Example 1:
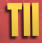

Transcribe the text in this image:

TII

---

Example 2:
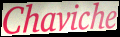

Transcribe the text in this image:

Chaviche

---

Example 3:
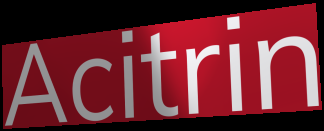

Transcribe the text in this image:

Acitrin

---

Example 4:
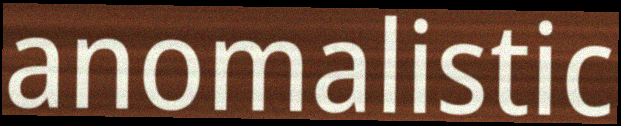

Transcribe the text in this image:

anomalistic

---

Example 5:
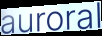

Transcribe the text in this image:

auroral